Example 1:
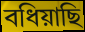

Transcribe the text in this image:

বধিয়াছি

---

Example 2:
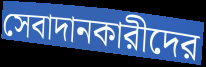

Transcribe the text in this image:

সেবাদানকারীদের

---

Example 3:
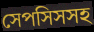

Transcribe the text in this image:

সেপসিসসহ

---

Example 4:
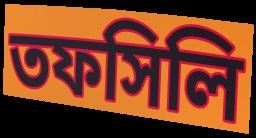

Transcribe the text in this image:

তফসিলি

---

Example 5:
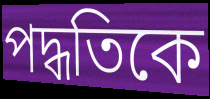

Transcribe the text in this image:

পদ্ধতিকে